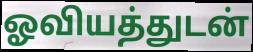
ஓவியத்துடன்